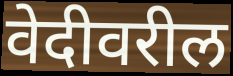
वेदीवरील